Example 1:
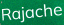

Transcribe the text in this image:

Rajache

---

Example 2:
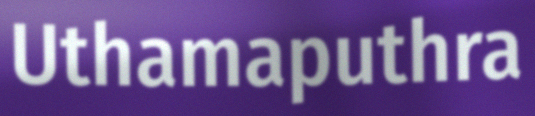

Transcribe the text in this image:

Uthamaputhra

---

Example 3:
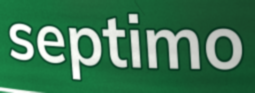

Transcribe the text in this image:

septimo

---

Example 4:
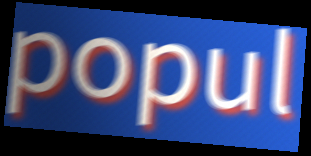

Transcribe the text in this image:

popul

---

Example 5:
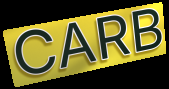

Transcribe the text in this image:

CARB